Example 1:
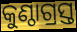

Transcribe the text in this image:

କୁଣ୍ଠାଗ୍ରସ୍ତ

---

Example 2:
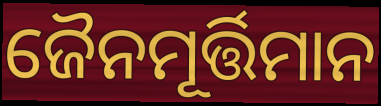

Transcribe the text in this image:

ଜୈନମୂର୍ତ୍ତିମାନ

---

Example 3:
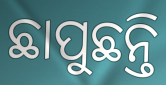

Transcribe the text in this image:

ଛାପୁଛନ୍ତି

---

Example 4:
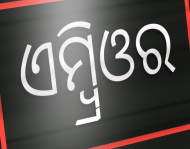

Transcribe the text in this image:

ଏମ୍ବ୍ରିଓର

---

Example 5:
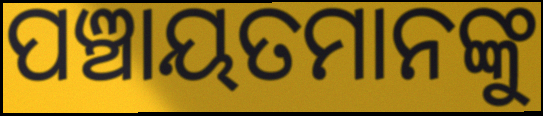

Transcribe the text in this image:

ପଞ୍ଚାୟତମାନଙ୍କୁ